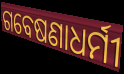
ଗବେଷଣାଧର୍ମୀ